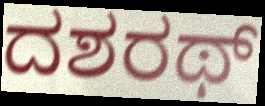
ದಶರಥ್